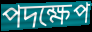
পদক্ষেপ